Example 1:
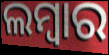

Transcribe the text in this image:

ଲମ୍ୱାର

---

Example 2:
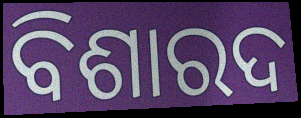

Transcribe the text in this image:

ବିଶାରଦ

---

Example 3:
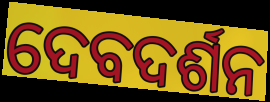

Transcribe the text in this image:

ଦେବଦର୍ଶନ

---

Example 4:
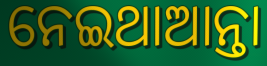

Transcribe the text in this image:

ନେଇଥାଆନ୍ତା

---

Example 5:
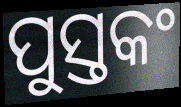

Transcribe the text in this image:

ପୁସ୍ତକଂ